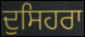
ਦੁਸਿਹਰਾ